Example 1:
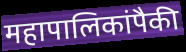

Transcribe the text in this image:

महापालिकांपैकी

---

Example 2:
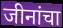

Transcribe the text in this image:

जीनांचा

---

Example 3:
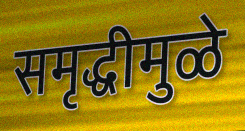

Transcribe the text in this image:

समृद्धीमुळे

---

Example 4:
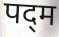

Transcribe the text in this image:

पद्‌म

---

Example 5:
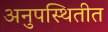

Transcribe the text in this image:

अनुपस्थितीत